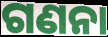
ଗଣନା